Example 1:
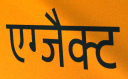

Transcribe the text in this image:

एग्जैक्ट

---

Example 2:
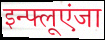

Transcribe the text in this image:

इन्फ्लूएंजा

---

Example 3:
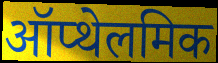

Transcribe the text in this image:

ऑप्थेलमिक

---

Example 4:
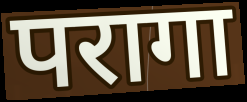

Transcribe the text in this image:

परागा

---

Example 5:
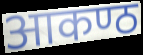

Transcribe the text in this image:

आकण्ठ